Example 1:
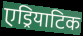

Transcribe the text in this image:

एड्रियाटिक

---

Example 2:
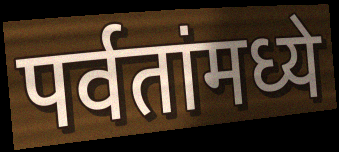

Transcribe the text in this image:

पर्वतांमध्ये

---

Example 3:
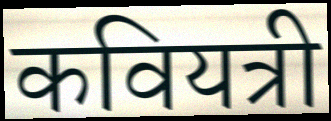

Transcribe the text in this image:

कवियत्री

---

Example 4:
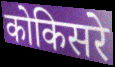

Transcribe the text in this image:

कोकिसरे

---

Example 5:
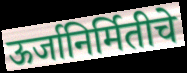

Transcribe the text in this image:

ऊर्जानिर्मितीचे